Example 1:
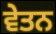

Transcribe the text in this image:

ਵੇਤਨ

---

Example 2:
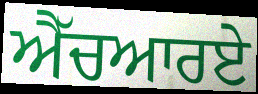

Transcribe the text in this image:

ਐੱਚਆਰਏ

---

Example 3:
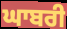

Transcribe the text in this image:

ਘਾਬਰੀ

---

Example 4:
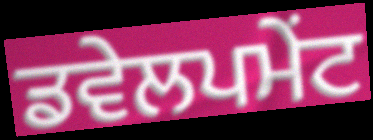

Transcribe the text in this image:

ਡਵੇਲਪਮੇਂਟ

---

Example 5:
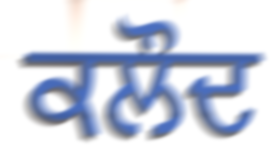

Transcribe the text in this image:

ਕਲੌਦ